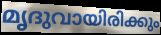
മൃദുവായിരിക്കും